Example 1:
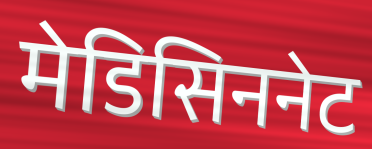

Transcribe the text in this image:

मेडिसिननेट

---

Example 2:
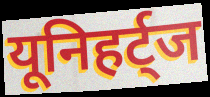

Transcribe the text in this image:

यूनिहर्ट्ज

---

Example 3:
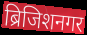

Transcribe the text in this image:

ब्रिजिशनगर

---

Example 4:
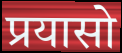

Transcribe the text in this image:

प्रयासो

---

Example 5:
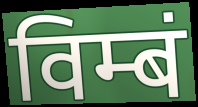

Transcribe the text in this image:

विम्बं